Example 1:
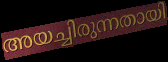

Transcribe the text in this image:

അയച്ചിരുന്നതായി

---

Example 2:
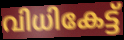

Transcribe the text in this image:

വിധികേട്ട്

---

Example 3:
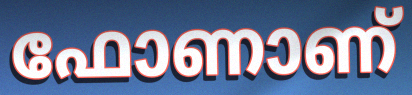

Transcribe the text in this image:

ഫോണാണ്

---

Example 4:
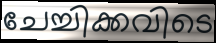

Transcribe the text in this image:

ചേച്ചിക്കവിടെ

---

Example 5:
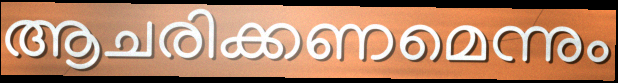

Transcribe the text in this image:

ആചരിക്കണമെന്നും